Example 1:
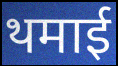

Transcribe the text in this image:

थमाई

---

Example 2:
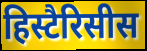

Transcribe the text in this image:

हिस्टैरिसीस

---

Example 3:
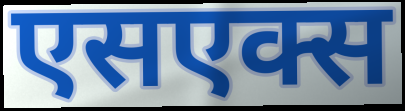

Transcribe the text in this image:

एसएक्स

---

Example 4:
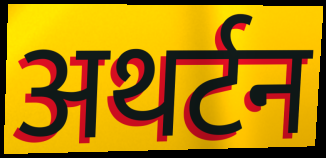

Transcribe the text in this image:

अथर्टन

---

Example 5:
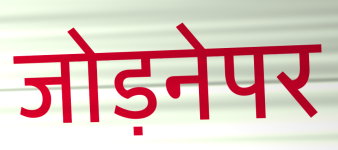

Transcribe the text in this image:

जोड़नेपर